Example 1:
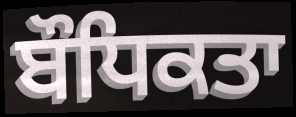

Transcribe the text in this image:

ਬੌਧਿਕਤਾ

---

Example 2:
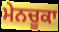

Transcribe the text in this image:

ਮੇਨਚੂਕਾ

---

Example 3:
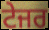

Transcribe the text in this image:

ਟੇਜਰ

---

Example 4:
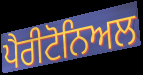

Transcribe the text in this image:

ਪੈਰੀਟੋਨਿਅਲ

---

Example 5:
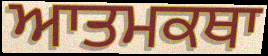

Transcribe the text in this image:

ਆਤਮਕਥਾ